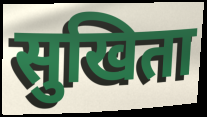
सुखिता